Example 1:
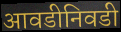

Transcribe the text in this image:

आवडीनिवडी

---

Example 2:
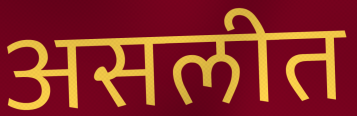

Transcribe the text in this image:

असलीत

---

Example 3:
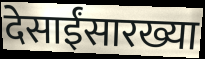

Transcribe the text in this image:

देसाईंसारख्या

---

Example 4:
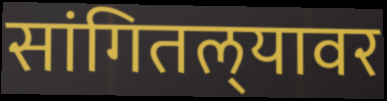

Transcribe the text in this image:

सांगितल्यावर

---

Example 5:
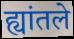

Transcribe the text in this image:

ह्यांतले